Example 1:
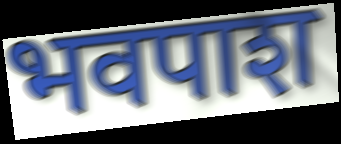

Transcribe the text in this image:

भवपाश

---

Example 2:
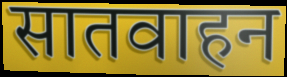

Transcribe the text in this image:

सातवाहन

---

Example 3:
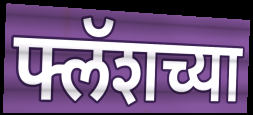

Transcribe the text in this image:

फ्लॅशच्या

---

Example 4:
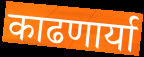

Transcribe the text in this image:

काढणार्या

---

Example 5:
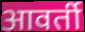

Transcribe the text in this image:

आवर्ती